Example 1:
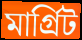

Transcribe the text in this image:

মাৰ্গ্ৰিট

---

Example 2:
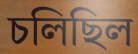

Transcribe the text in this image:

চলিছিল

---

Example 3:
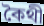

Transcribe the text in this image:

কৈথী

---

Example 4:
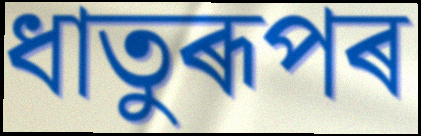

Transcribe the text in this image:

ধাতুৰূপৰ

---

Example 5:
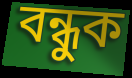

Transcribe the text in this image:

বন্ধুক